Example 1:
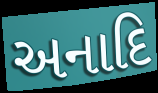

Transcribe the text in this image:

અનાદિ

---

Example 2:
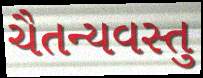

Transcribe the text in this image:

ચૈતન્યવસ્તુ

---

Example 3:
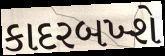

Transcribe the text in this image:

કાદરબખ્શે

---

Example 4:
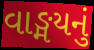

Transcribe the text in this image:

વાઙ્મયનું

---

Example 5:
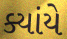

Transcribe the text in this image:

ક્યાંયે